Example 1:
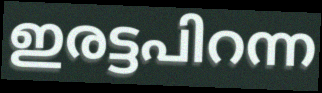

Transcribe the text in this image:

ഇരട്ടപിറന്ന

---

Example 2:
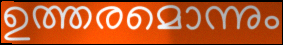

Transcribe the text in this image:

ഉത്തരമൊന്നും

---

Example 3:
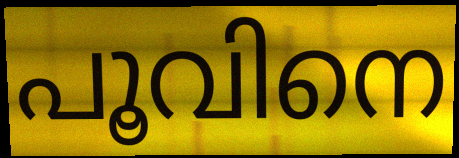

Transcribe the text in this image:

പൂവിനെ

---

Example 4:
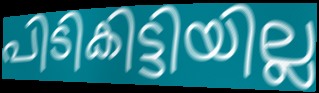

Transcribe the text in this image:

പിടികിട്ടിയില്ല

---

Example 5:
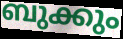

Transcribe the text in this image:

ബുക്കും